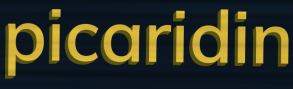
picaridin